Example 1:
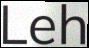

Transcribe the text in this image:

Leh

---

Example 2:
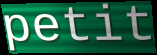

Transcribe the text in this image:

petit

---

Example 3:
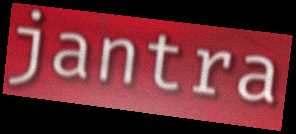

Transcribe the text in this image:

jantra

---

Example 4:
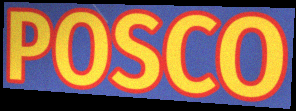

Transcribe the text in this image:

POSCO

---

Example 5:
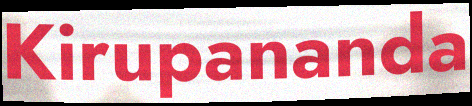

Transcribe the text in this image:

Kirupananda